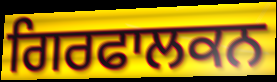
ਗਿਰਫਾਲਕਨ